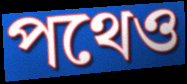
পথেও